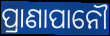
ପ୍ରାଣାପାନୌ